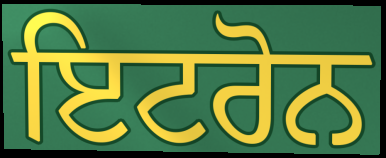
ਇਟਰੋਨ